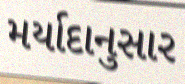
મર્યાદાનુસાર